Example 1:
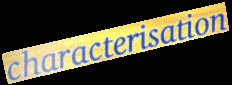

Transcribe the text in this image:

characterisation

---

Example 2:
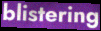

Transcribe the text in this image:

blistering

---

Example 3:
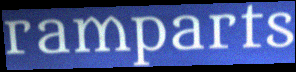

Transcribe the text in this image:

ramparts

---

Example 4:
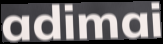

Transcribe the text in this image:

adimai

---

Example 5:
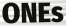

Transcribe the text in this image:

ONEs